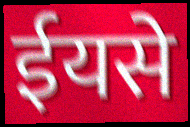
ईयसे